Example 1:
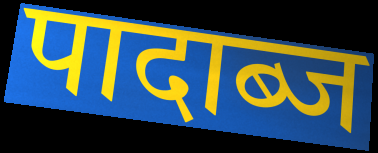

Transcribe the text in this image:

पादाब्ज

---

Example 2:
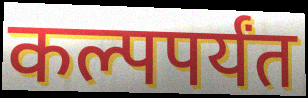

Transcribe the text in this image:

कल्पपर्यंत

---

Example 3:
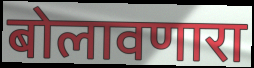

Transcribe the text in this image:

बोलावणारा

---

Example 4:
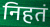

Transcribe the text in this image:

निहतं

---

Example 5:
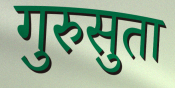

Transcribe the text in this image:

गुरुसुता